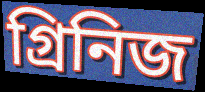
গ্রিনিজ